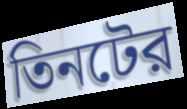
তিনটের